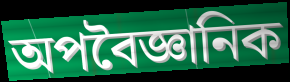
অপবৈজ্ঞানিক